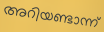
അറിയണ്ടാന്ന്